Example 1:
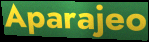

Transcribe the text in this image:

Aparajeo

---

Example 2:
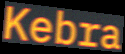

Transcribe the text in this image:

Kebra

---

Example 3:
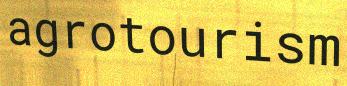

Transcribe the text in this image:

agrotourism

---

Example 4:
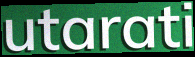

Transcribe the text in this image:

utarati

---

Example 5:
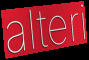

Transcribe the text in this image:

alteri